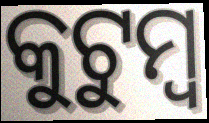
କୁଟୁମ୍ଵ